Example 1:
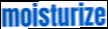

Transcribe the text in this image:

moisturize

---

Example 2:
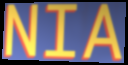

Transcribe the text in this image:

NIA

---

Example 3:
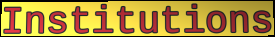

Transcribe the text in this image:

Institutions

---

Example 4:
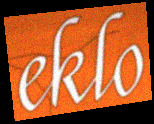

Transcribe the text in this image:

eklo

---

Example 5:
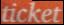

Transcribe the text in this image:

ticket